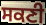
ਸਕਣੀ